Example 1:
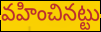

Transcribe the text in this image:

వహించినట్టు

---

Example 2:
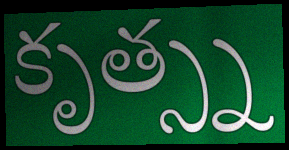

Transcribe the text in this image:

కృత్స్న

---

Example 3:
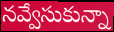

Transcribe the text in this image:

నవ్వేసుకున్నా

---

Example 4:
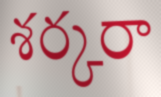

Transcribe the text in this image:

శర్కరా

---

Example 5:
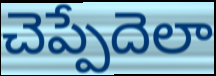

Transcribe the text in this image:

చెప్పేదెలా